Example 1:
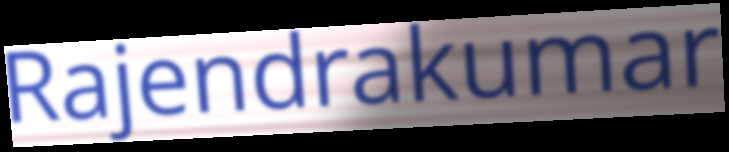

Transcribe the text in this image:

Rajendrakumar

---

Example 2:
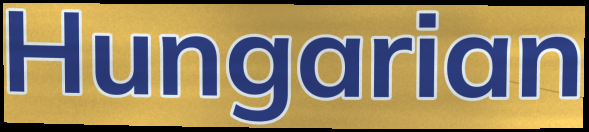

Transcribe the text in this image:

Hungarian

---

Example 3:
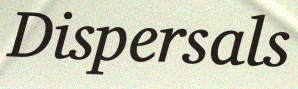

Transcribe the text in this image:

Dispersals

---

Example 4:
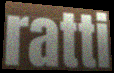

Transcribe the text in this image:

ratti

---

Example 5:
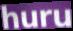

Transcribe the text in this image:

huru